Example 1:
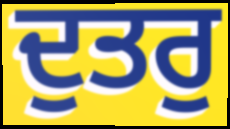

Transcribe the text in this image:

ਦੁਤਰੁ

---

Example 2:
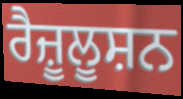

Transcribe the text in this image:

ਰੈਜ਼ੂਲੂਸ਼ਨ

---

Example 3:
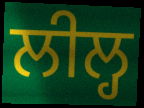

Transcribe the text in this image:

ਲੀਲ੍ਹ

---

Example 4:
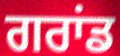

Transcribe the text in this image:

ਗਰਾਂਡ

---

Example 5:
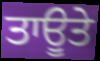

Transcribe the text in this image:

ਤਾਊਤੇ